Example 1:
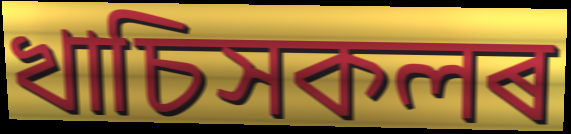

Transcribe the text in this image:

খাচিসকলৰ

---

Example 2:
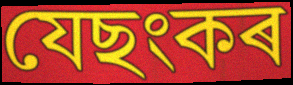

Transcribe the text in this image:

যেছংকৰ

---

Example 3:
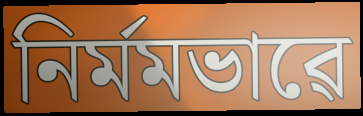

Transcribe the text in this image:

নিৰ্মমভাৱে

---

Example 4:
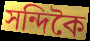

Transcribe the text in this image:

সন্দিকৈ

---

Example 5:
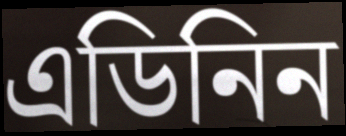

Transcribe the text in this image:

এডিনিন